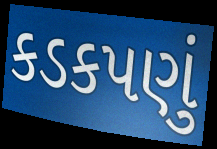
કડકપણું